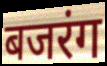
बजरंग